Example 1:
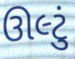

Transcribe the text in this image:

ઊલ્ટું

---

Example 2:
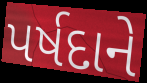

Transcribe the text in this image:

પર્ષદાને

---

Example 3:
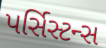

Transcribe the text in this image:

પર્સિસ્ટન્સ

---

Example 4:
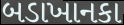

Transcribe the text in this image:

બડાખાનકા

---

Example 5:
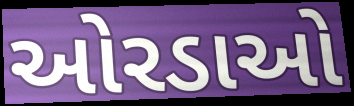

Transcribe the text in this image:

ઓરડાઓ